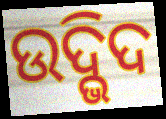
ଉଦ୍ଭିଦ